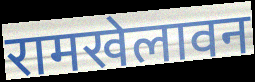
रामखेलावन